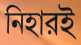
নিহারই